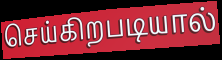
செய்கிறபடியால்